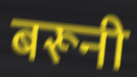
बरूनी